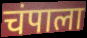
चंपाला